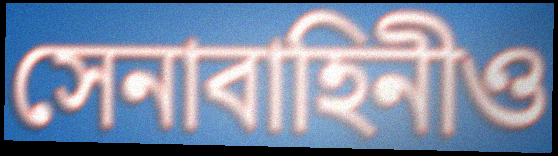
সেনাবাহিনীও